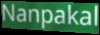
Nanpakal